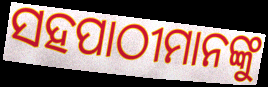
ସହପାଠୀମାନଙ୍କୁ